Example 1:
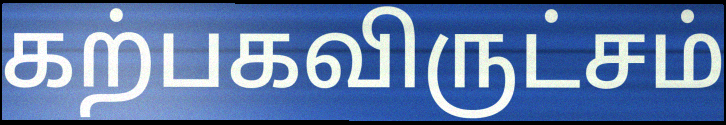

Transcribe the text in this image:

கற்பகவிருட்சம்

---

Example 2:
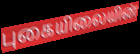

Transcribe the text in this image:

புகையிலையின்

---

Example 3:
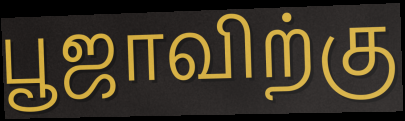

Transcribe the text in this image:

பூஜாவிற்கு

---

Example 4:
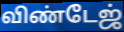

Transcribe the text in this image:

விண்டேஜ்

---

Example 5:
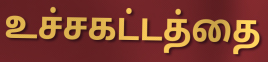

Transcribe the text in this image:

உச்சகட்டத்தை